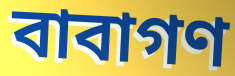
বাবাগণ